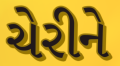
ચેરીને